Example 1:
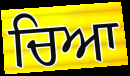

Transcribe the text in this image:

ਚਿਆ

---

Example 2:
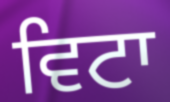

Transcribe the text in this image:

ਵਿਟਾ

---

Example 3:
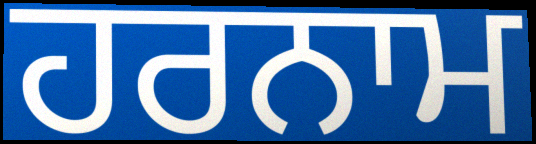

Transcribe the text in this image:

ਹਰਨਾਮ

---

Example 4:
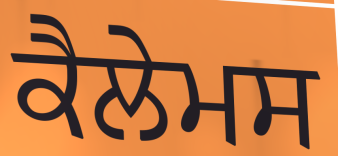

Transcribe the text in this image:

ਕੈਲੇਮਸ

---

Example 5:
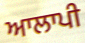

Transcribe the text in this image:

ਆਲਾਪੀ